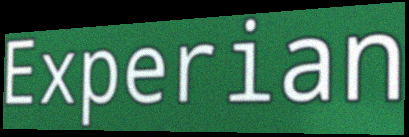
Experian